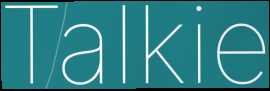
Talkie